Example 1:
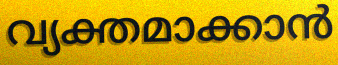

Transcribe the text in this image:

വ്യക്തമാക്കാൻ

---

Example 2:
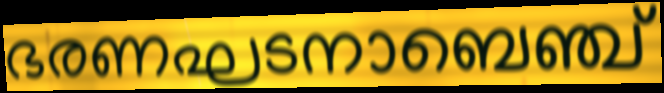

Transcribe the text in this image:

ഭരണഘടനാബെഞ്ച്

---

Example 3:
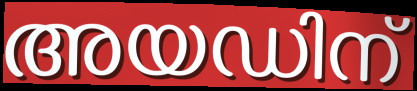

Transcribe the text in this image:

അയഡിന്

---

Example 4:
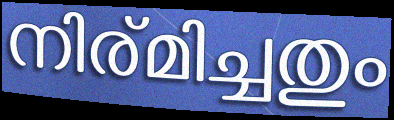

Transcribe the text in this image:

നിര്മിച്ചതും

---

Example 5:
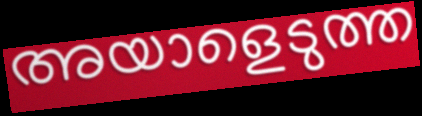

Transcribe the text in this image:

അയാളെടുത്ത